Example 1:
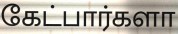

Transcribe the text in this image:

கேட்பார்களா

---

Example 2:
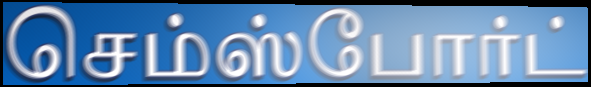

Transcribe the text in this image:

செம்ஸ்போர்ட்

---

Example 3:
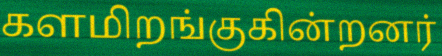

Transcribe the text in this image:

களமிறங்குகின்றனர்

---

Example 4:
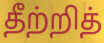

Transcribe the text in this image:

தீற்றித்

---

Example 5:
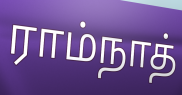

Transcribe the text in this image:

ராம்நாத்